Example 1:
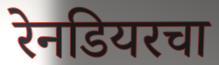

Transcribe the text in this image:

रेनडियरचा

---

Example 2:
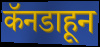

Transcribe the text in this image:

कॅनडाहून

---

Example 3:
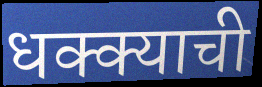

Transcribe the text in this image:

धक्क्याची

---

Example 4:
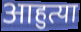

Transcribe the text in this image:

आहुत्या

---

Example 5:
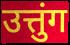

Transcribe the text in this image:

उत्तुंग